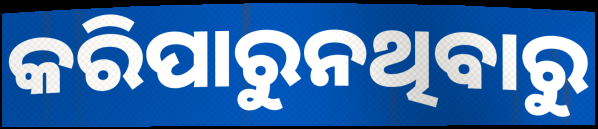
କରିପାରୁନଥିବାରୁ